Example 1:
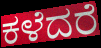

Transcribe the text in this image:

ಕಳೆದರೆ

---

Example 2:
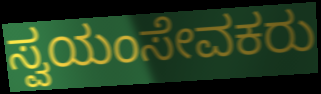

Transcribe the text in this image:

ಸ್ವಯಂಸೇವಕರು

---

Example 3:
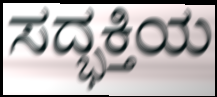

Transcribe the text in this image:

ಸದ್ಭಕ್ತಿಯ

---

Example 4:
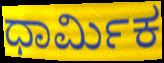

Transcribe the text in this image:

ಧಾರ್ಮಿಕ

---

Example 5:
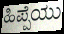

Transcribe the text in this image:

ಹಿಪ್ಪೆಯು